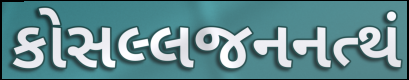
કોસલ્લજનનત્થં